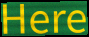
Here